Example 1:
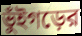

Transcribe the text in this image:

ভুঁইগড়ের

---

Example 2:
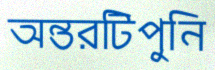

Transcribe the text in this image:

অন্তরটিপুনি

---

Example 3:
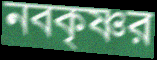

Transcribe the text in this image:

নবকৃষ্ণর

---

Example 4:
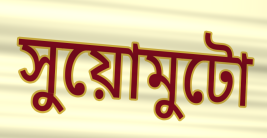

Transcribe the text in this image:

সুয়োমুটো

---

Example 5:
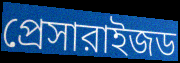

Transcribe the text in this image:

প্রেসারাইজড